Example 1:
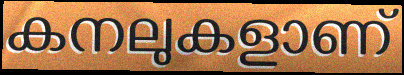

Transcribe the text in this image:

കനലുകളാണ്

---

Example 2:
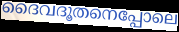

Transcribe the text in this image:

ദൈവദൂതനെപ്പോലെ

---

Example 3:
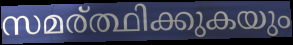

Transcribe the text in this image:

സമര്ത്ഥിക്കുകയും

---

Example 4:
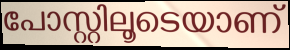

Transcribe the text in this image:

പോസ്റ്റിലൂടെയാണ്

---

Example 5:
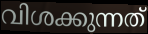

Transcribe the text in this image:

വിശക്കുന്നത്